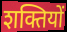
शक्तियों